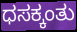
ಧಸಕ್ಕಂತು